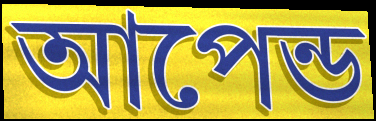
আপেন্ড